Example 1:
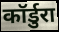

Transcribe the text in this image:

कॉर्डुरा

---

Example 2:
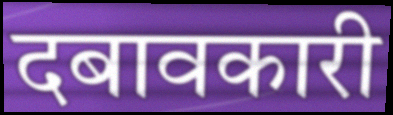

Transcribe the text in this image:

दबावकारी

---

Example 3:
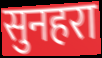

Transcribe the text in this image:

सुनहरा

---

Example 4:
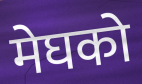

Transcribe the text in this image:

मेघको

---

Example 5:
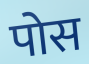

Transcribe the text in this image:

पोस